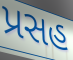
પ્રસહ